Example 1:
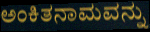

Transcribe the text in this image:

ಅಂಕಿತನಾಮವನ್ನು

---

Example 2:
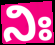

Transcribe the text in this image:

ನಿಃ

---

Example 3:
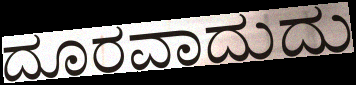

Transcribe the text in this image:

ದೂರವಾದುದು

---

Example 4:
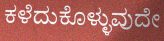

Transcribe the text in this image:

ಕಳೆದುಕೊಳ್ಳುವುದೇ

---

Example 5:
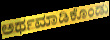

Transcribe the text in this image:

ಅರ್ಥಮಾಡಿಕೊಂಡು